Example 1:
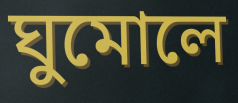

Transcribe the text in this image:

ঘুমোলে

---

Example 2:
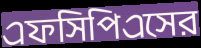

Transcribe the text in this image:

এফসিপিএসের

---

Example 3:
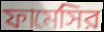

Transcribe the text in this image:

ফার্মেসির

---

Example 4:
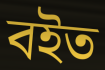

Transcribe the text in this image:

বইত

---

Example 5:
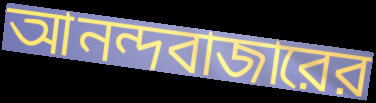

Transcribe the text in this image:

আনন্দবাজারের